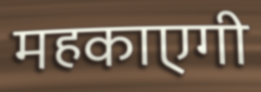
महकाएगी